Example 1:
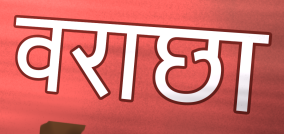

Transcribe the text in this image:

वराछा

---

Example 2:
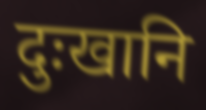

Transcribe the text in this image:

दुःखानि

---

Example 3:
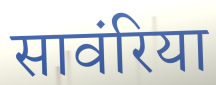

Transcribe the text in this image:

सावंरिया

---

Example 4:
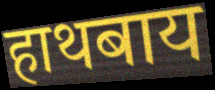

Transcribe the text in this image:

हाथबाय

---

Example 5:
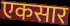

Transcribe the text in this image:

एकसार